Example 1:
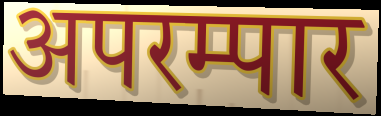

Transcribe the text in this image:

अपरम्पार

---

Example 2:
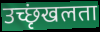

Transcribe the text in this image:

उच्छृंखलता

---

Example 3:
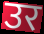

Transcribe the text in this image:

उर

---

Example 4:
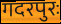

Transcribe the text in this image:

गदरपुरः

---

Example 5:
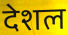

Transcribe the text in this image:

देशल